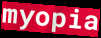
myopia